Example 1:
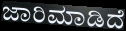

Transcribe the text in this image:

ಜಾರಿಮಾಡಿದೆ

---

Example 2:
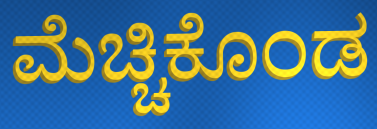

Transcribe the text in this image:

ಮೆಚ್ಚಿಕೊಂಡ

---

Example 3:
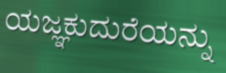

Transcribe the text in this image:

ಯಜ್ಞಕುದುರೆಯನ್ನು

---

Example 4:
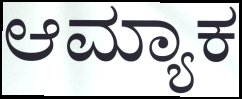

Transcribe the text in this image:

ಆಮ್ಯಾಕ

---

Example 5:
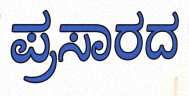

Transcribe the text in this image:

ಪ್ರಸಾರದ